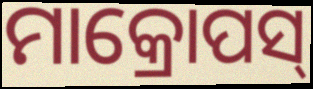
ମାକ୍ରୋପସ୍